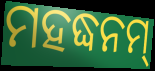
ମହଦ୍ଧନମ୍